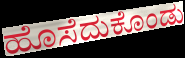
ಹೊಸೆದುಕೊಂಡು